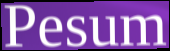
Pesum